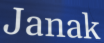
Janak